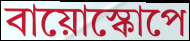
বায়োস্কোপে